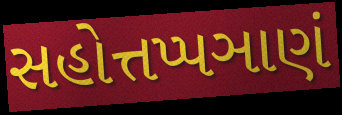
સહોત્તપ્પઞાણં